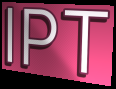
IPT